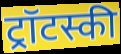
ट्रॉटस्की